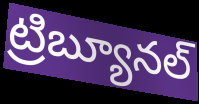
ట్రిబ్యూనల్